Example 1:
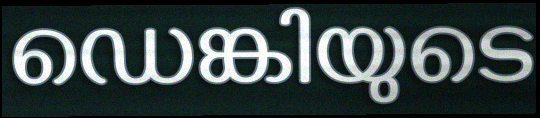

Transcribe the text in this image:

ഡെങ്കിയുടെ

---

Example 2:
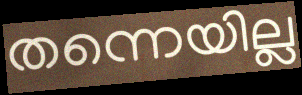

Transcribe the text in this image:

തന്നെയില്ല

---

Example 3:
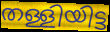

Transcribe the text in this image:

തള്ളിയിട്ട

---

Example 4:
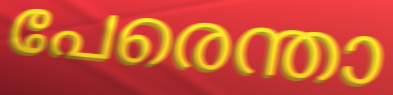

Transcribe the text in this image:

പേരെന്താ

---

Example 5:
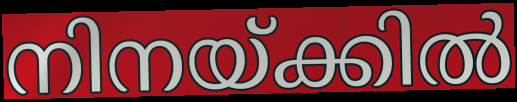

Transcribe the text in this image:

നിനയ്ക്കിൽ